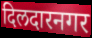
दिलदारनगर